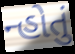
ન્હોતું